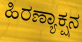
ಹಿರಣ್ಯಾಕ್ಷನ